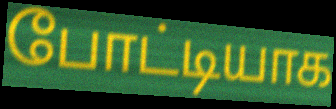
போட்டியாக